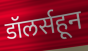
डॉलर्सहून